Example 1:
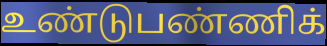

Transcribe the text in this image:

உண்டுபண்ணிக்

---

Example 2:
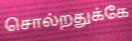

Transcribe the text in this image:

சொல்றதுக்கே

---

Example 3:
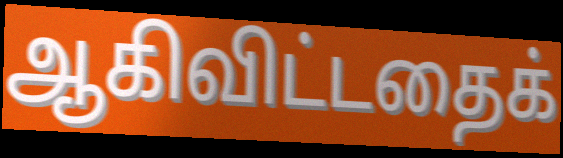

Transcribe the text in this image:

ஆகிவிட்டதைக்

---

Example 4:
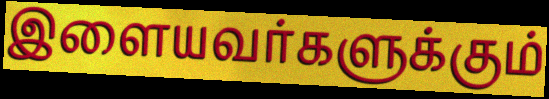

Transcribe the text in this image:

இளையவர்களுக்கும்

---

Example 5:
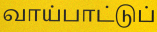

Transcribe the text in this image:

வாய்பாட்டுப்